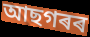
আছগৰৰ